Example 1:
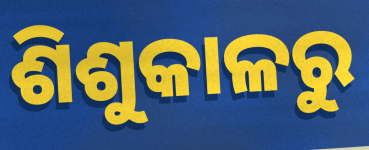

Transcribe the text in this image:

ଶିଶୁକାଳରୁ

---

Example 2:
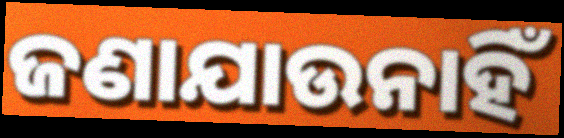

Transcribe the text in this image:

ଜଣାଯାଉନାହିଁ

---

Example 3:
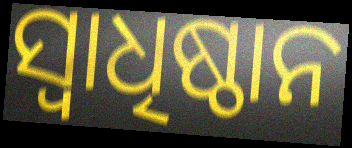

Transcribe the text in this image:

ସ୍ୱାଧିଷ୍ଠାନ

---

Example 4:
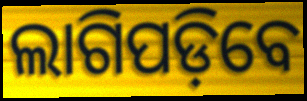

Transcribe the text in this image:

ଲାଗିପଡ଼ିବେ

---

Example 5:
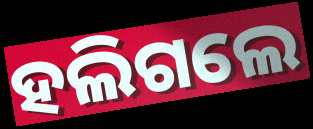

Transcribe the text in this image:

ହଲିଗଲେ